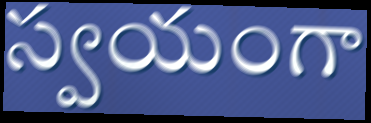
స్వయంగా